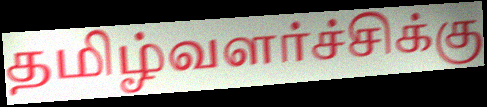
தமிழ்வளர்ச்சிக்கு